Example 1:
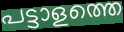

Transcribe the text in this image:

പട്ടാളത്തെ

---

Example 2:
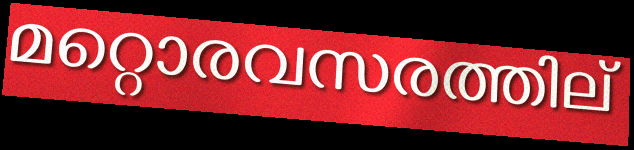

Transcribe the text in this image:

മറ്റൊരവസരത്തില്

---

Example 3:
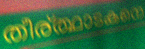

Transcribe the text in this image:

തീര്ത്ഥാടകനെ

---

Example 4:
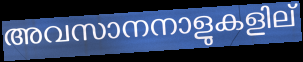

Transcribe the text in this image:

അവസാനനാളുകളില്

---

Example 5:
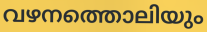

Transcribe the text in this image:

വഴനത്തൊലിയും